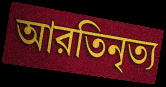
আরতিনৃত্য